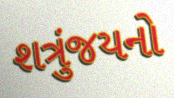
શત્રુંજયનો